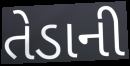
તેડાની